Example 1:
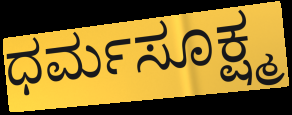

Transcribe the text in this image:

ಧರ್ಮಸೂಕ್ಷ್ಮ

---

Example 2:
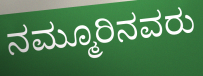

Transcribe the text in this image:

ನಮ್ಮೂರಿನವರು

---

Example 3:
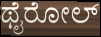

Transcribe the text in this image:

ಥೈರೋಲ್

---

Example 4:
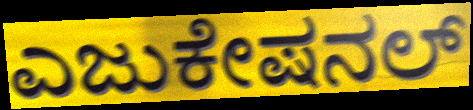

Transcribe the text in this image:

ಎಜುಕೇಷನಲ್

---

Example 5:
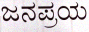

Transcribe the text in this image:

ಜನಪ್ರಯ